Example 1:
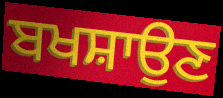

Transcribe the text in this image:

ਬਖਸ਼ਾਉਣ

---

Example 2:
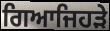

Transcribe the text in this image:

ਗਿਆਜਿਹੜੇ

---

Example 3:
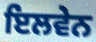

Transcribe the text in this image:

ਇਲਵੇਨ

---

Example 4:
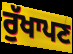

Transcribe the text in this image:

ਰੁੱਖਾਪਣ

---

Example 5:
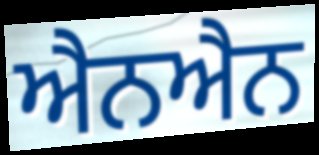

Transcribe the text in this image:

ਐਨਐਨ